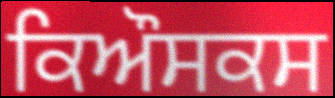
ਕਿਔਸਕਸ